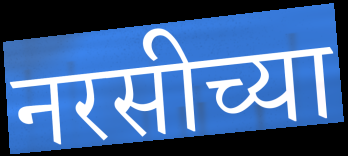
नरसीच्या